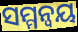
ସମ୍ମନ୍ୱୟ